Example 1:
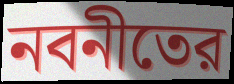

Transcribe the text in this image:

নবনীতের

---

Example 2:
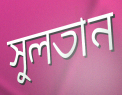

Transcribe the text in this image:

সুলতান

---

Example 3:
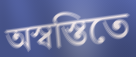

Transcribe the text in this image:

অস্বস্তিতে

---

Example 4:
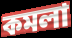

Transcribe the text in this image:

কমলা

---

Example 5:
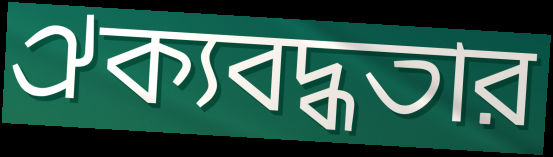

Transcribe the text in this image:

ঐক্যবদ্ধতার